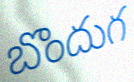
బొందుగ